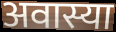
अवास्या